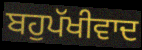
ਬਹੁਪੱਖੀਵਾਦ